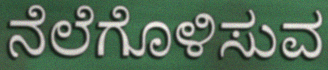
ನೆಲೆಗೊಳಿಸುವ